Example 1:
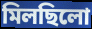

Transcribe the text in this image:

মিলছিলো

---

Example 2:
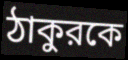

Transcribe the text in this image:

ঠাকুরকে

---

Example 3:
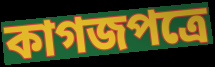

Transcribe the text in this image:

কাগজপত্রে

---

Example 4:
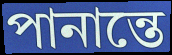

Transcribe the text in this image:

পানান্তে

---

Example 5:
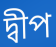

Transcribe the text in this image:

দ্বীপ